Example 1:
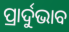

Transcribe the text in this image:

ପ୍ରାର୍ଦୁଭାବ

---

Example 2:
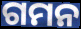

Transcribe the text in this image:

ଗମନ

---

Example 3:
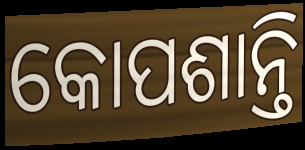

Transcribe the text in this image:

କୋପଶାନ୍ତି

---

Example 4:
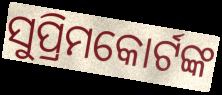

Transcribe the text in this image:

ସୁପ୍ରିମକୋର୍ଟଙ୍କ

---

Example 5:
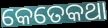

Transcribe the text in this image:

କେତେକଥା